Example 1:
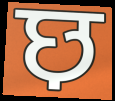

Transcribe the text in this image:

छ़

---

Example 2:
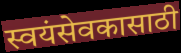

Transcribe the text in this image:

स्वयंसेवकासाठी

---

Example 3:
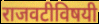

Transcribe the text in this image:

राजवटीविषयी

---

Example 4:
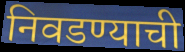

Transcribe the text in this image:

निवडण्याची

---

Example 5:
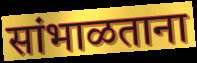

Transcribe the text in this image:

सांभाळताना